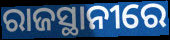
ରାଜସ୍ଥାନୀରେ